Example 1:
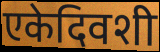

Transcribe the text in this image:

एकेदिवशी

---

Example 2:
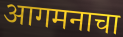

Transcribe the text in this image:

आगमनाचा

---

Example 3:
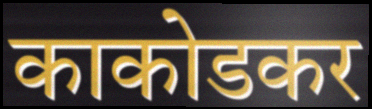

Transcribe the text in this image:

काकोडकर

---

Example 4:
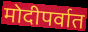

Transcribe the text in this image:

मोदीपर्वात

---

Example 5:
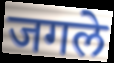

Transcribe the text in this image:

जगले